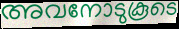
അവനോടുകൂടെ